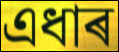
এধাৰ